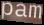
pam